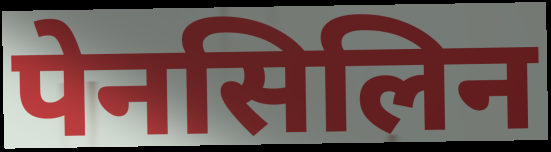
पेनसिलिन